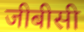
जीबीसी